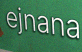
ejnana